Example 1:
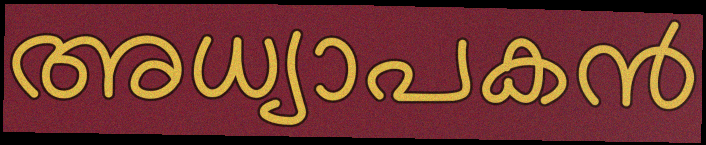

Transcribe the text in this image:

അധ്യാപകൻ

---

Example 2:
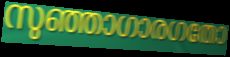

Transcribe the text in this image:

സുഞ്ഞാഗാരഗതോ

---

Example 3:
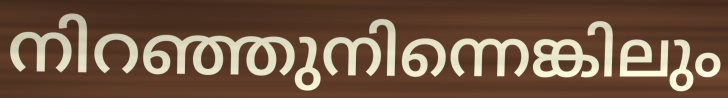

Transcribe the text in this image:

നിറഞ്ഞുനിന്നെങ്കിലും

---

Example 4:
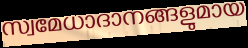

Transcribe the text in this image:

സ്വമേധാദാനങ്ങളുമായ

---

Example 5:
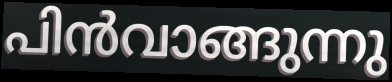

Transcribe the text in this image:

പിൻവാങ്ങുന്നു